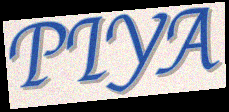
PIYA